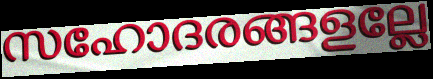
സഹോദരങ്ങളല്ലേ